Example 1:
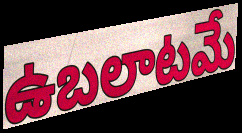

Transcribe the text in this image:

ఉబలాటమే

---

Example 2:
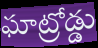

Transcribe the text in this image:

ఘాట్రోడ్డు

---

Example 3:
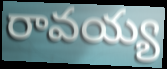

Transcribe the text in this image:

రావయ్య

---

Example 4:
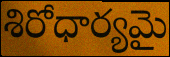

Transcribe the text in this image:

శిరోధార్యమై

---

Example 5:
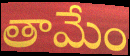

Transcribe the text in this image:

తామేం